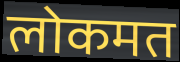
लोकमत